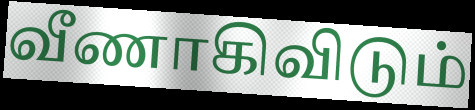
வீணாகிவிடும்